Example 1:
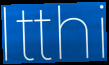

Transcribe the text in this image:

Itthi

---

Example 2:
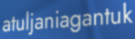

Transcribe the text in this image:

atuljaniagantuk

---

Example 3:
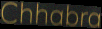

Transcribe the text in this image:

Chhabra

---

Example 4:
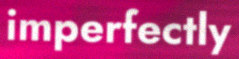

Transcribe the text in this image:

imperfectly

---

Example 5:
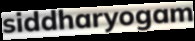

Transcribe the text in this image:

siddharyogam